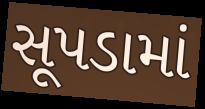
સૂપડામાં